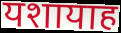
यशायाह